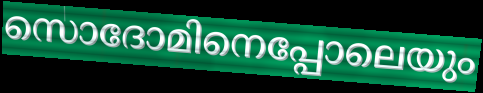
സൊദോമിനെപ്പോലെയും